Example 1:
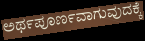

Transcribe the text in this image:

ಅರ್ಥಪೂರ್ಣವಾಗುವುದಕ್ಕೆ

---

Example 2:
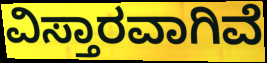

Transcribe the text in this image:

ವಿಸ್ತಾರವಾಗಿವೆ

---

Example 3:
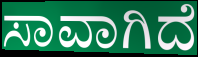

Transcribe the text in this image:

ಸಾವಾಗಿದೆ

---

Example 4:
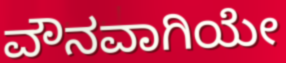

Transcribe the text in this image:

ವೌನವಾಗಿಯೇ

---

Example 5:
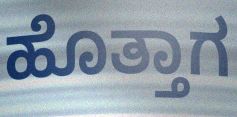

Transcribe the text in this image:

ಹೊತ್ತಾಗ